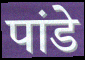
पांडे